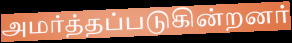
அமர்த்தப்படுகின்றனர்